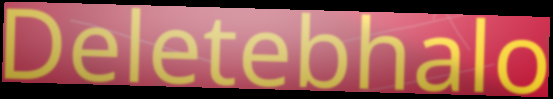
Deletebhalo